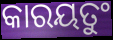
କାରୟତୁଂ